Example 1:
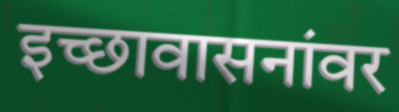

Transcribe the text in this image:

इच्छावासनांवर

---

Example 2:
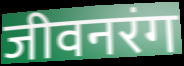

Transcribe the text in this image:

जीवनरंग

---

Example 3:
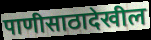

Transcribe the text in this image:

पाणीसाठादेखील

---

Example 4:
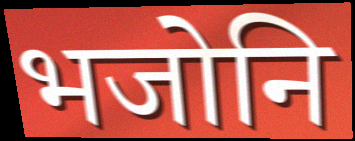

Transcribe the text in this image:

भजोनि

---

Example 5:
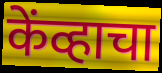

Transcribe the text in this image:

केंव्हाचा